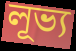
লূভ্য